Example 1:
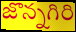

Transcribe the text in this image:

జొన్నగిరి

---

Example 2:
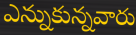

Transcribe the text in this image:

ఎన్నుకున్నవారు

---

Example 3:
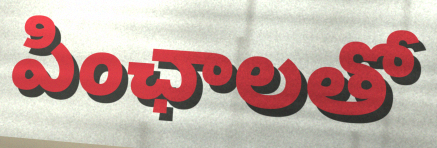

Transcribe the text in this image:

పింఛాలతో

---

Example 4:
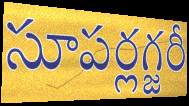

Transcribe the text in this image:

సూపర్లగ్జరీ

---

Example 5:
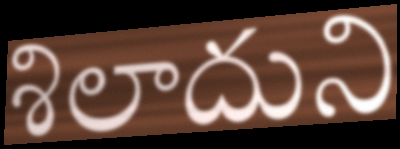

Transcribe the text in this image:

శిలాదుని